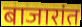
बाजारांत